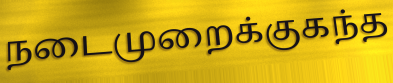
நடைமுறைக்குகந்த